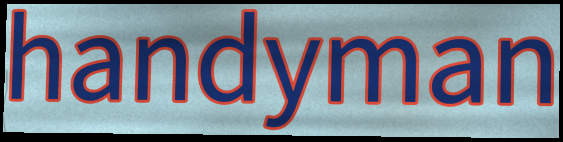
handyman